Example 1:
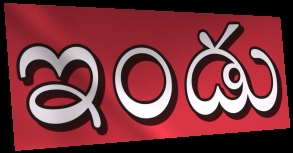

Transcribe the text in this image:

ఇండు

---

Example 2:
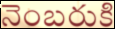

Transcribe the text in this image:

నెంబరుకి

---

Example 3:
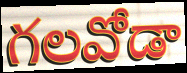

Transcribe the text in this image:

గలవోడా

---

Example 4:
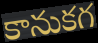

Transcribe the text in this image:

కానుకగ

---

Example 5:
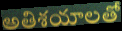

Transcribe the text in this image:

అతిశయాలతో